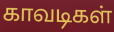
காவடிகள்